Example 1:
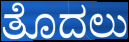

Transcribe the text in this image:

ತೊದಲು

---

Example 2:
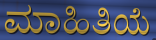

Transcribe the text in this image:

ಮಾಹಿತಿಯೆ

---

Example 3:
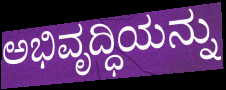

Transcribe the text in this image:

ಅಭಿವೃದ್ಧಿಯನ್ನು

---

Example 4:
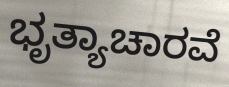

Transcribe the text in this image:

ಭೃತ್ಯಾಚಾರವೆ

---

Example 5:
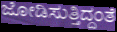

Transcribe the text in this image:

ಜೋಡಿಸುತ್ತಿದ್ದಂತೆ